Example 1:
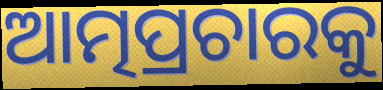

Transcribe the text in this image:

ଆତ୍ମପ୍ରଚାରକୁ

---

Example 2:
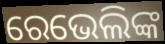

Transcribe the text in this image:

ରେଭେଲିଙ୍କ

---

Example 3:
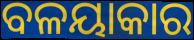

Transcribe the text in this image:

ବଳୟାକାର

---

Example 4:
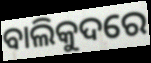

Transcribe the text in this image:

ବାଲିକୁଦରେ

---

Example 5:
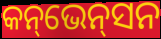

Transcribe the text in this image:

କନ୍‌ଭେନ୍‌ସନ